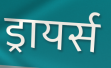
ड्रायर्स